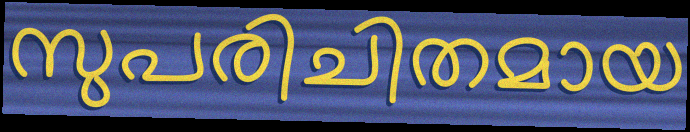
സുപരിചിതമായ